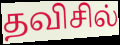
தவிசில்